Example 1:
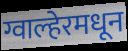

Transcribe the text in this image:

ग्वाल्हेरमधून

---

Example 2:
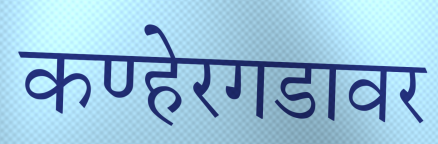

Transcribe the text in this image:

कण्हेरगडावर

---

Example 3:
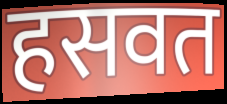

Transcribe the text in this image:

हसवत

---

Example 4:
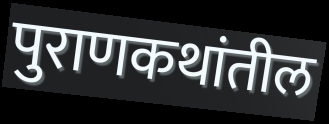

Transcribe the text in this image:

पुराणकथांतील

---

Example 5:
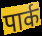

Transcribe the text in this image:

पार्क